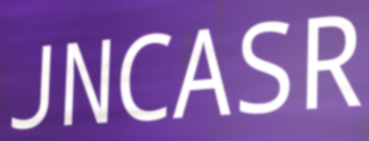
JNCASR